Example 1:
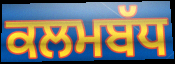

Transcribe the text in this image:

ਕਲਮਬੱਧ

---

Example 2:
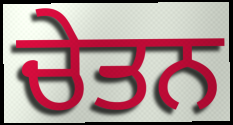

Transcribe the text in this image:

ਚੇਤਨ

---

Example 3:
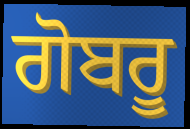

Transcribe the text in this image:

ਗੋਬਰੂ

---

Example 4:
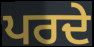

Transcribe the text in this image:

ਪਰਦੇ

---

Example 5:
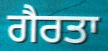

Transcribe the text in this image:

ਗੈਰਤਾ